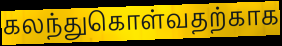
கலந்துகொள்வதற்காக